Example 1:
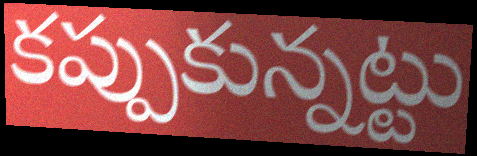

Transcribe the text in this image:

కప్పుకున్నట్టు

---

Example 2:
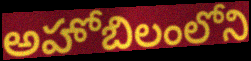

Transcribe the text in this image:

అహోబిలంలోని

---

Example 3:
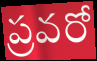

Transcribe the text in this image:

ప్రవరో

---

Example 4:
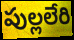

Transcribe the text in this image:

పుల్లలేరి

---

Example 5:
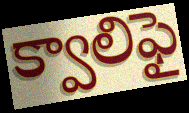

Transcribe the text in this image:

క్వాలిఫై